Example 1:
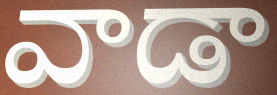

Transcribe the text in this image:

వాడా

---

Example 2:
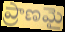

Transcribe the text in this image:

ప్రాణమై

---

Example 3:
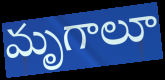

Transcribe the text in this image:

మృగాలూ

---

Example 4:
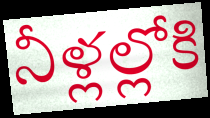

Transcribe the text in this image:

నీళ్లల్లోకి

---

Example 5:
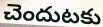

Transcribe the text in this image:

చెందుటకు